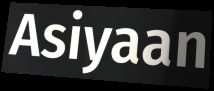
Asiyaan